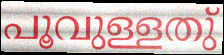
പൂവുള്ളതു്